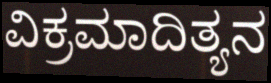
ವಿಕ್ರಮಾದಿತ್ಯನ